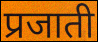
प्रजाती